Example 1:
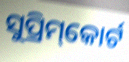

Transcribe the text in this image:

ସୁପ୍ରିମ୍‌କୋର୍ଟ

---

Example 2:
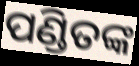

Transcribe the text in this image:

ପଣ୍ଡିତଙ୍କ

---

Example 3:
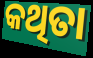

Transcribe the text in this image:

କଥିତା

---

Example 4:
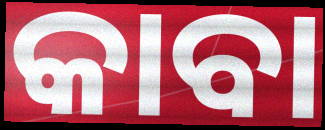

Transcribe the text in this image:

କାବା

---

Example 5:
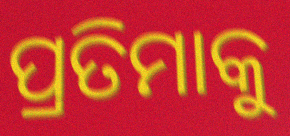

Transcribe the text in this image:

ପ୍ରତିମାକୁ